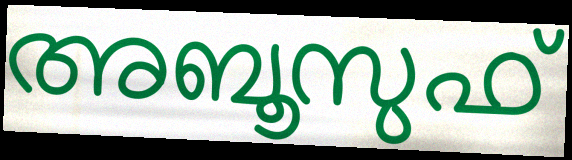
അബൂസുഫ്